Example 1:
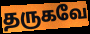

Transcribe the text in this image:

தருகவே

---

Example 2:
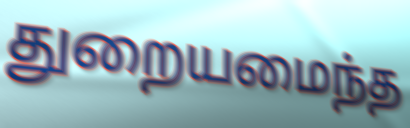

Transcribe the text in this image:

துறையமைந்த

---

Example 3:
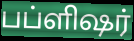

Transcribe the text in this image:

பப்ளிஷர்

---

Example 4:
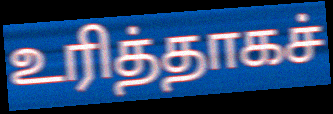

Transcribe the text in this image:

உரித்தாகச்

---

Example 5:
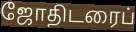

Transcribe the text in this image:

ஜோதிடரைப்